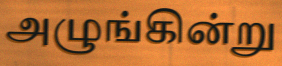
அழுங்கின்று